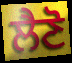
ਲੈਣੋ